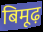
बिमूढ़